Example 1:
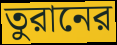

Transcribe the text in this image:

তুরানের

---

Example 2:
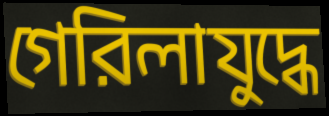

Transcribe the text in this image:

গেরিলাযুদ্ধে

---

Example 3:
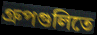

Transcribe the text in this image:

গ্রুপগুলিতে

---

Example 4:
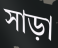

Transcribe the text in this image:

সাড়া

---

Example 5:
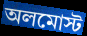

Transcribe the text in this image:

অলমোস্ট